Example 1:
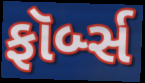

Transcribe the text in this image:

ફૉર્બ્સ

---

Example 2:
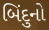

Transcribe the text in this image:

બિંદુનો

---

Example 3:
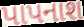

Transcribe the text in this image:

પાપનાશ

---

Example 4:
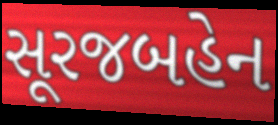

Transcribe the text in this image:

સૂરજબહેન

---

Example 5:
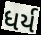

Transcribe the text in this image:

ધર્ય